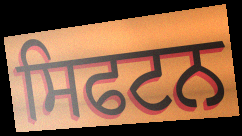
ਸਿਫਟਨ